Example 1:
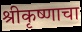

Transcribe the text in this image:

श्रीकृष्णाचा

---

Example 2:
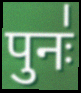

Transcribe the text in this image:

पुनः॑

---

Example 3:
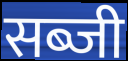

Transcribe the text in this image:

सब्जी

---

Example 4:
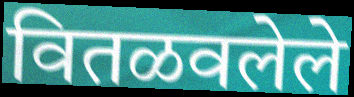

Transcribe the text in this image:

वितळवलेले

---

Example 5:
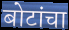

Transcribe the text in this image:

बोटांचा